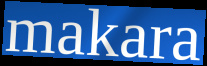
makara